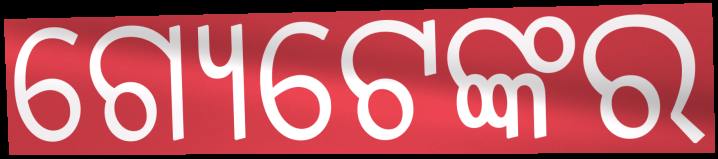
ଗ୍ୟେଟେଙ୍କର